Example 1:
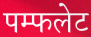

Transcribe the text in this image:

पम्फलेट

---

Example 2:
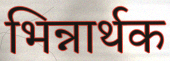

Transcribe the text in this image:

भिन्नार्थक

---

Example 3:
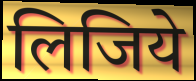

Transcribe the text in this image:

लिजिये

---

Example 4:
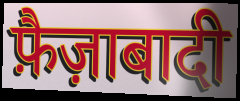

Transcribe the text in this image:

फ़ैज़ाबादी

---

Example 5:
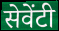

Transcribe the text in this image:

सेवेंटी